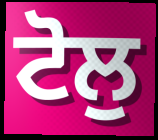
ਟੋਲੁ